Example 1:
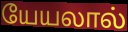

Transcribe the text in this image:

யேயலால்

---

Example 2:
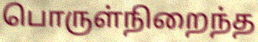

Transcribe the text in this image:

பொருள்நிறைந்த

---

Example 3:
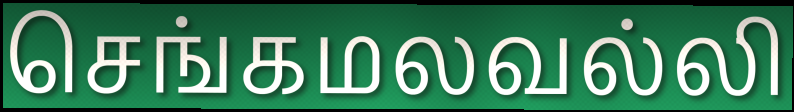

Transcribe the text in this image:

செங்கமலவல்லி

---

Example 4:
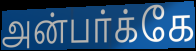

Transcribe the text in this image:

அன்பர்க்கே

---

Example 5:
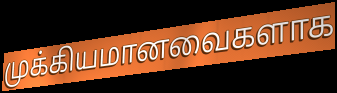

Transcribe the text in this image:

முக்கியமானவைகளாக